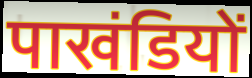
पाखंडियों